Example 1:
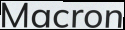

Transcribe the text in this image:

Macron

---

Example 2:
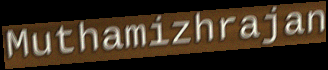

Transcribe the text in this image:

Muthamizhrajan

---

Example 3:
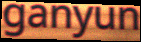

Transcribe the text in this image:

ganyun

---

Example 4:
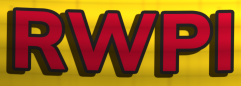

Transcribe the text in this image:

RWPI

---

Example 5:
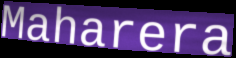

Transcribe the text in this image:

Maharera